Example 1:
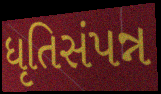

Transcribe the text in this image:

ધૃતિસંપન્ન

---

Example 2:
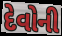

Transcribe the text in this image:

દેવોની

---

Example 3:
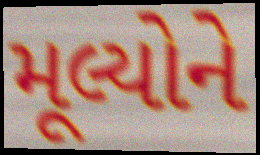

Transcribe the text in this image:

મૂલ્યોને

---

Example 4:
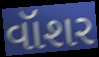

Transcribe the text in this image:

વૉશર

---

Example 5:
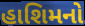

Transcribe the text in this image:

હાશિમનો